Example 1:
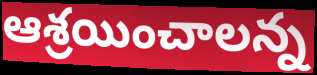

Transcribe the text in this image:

ఆశ్రయించాలన్న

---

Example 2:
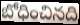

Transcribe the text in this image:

బోధించినది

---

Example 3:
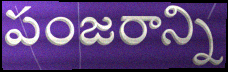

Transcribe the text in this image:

పంజరాన్ని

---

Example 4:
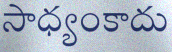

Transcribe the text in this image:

సాధ్యంకాదు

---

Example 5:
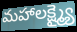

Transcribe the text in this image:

మహాలక్ష్మ్యై